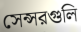
সেন্সরগুলি